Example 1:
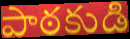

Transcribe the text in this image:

పాఠకుడి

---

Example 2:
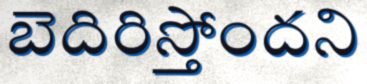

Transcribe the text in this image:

బెదిరిస్తోందని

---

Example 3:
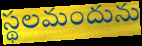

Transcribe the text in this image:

స్థలమందును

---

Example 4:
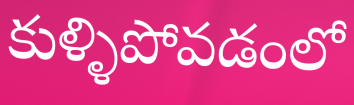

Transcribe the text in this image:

కుళ్ళిపోవడంలో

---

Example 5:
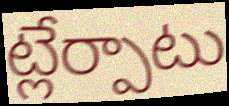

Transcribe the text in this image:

ట్లేర్పాటు